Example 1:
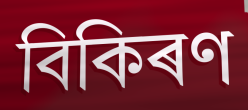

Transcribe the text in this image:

বিকিৰণ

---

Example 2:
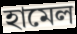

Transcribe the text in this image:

হামেল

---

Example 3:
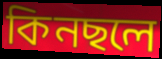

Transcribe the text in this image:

কিনছলে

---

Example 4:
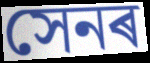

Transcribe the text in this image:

সেনৰ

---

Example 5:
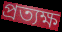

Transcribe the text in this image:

প্ৰত্যক্ষ